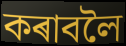
কৰাবলৈ